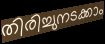
തിരിച്ചുനടക്കാം